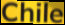
Chile